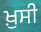
ਖ਼ੁਸੀ